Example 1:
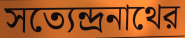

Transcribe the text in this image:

সত্যেন্দ্রনাথের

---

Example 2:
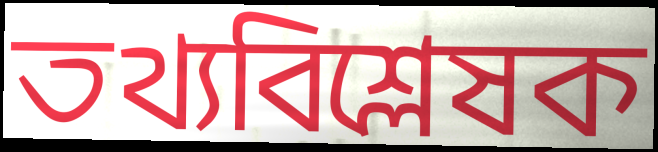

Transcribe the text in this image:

তথ্যবিশ্লেষক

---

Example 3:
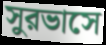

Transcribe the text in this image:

সুরভাসে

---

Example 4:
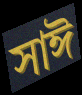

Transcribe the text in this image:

সাঈ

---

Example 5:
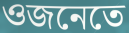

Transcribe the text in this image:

ওজনেতে